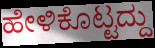
ಹೇಳಿಕೊಟ್ಟದ್ದು